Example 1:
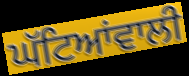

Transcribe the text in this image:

ਘੱਟਿਆਂਵਾਲੀ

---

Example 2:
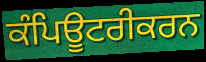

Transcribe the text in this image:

ਕੰਪਿਊਟਰੀਕਰਨ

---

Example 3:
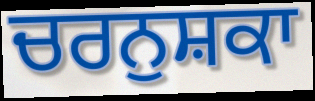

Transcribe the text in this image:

ਚਰਨੁਸ਼ਕਾ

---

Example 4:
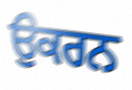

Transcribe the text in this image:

ਉਕਰਨ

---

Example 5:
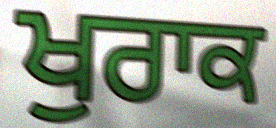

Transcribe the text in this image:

ਖੁਰਾਕ